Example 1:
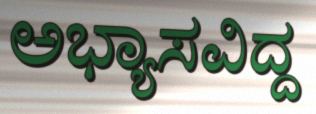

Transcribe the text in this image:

ಅಭ್ಯಾಸವಿದ್ದ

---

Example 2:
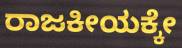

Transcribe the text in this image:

ರಾಜಕೀಯಕ್ಕೇ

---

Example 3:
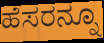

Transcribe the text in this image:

ಹೆಸರನ್ನೂ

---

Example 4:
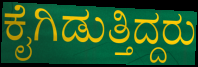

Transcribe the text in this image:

ಕೈಗಿಡುತ್ತಿದ್ದರು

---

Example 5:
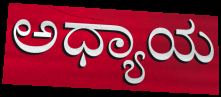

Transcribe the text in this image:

ಅಧ್ಯಾಯ